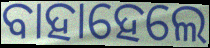
ବାହାହେଲେ